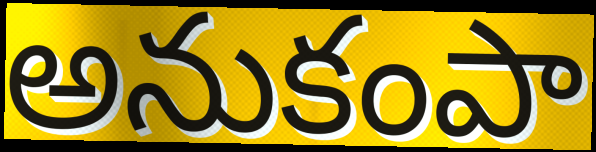
అనుకంపా